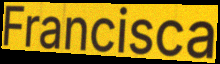
Francisca